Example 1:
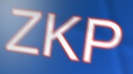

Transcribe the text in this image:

ZKP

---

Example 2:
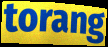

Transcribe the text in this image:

torang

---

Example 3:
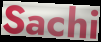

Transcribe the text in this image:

Sachi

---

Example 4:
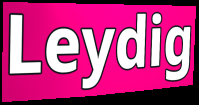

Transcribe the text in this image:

Leydig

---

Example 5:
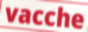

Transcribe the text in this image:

vacche